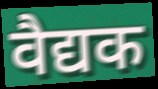
वैद्यक